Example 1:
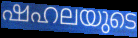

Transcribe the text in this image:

ഷഹലയുടെ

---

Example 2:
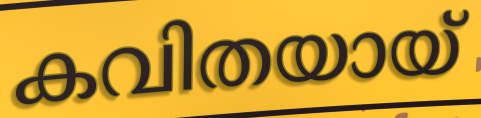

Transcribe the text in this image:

കവിതയായ്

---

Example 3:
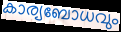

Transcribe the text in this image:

കാര്യബോധവും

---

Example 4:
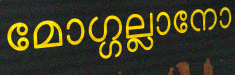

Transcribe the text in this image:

മോഗ്ഗല്ലാനോ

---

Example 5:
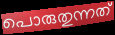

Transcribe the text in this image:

പൊരുതുന്നത്